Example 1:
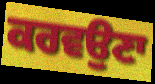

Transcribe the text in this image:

ਕਰਵਉਣਾ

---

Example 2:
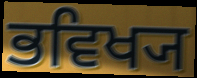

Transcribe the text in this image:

ਭਵਿਖ੍ਯ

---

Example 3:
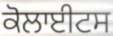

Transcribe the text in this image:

ਕੋਲਾਈਟਸ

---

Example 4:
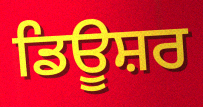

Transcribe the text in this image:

ਡਿਊਸ਼ਰ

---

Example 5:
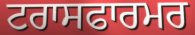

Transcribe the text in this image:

ਟਰਾਸਫਾਰਮਰ